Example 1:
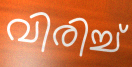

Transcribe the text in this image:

വിരിച്ച്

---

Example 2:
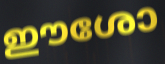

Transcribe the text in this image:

ഈശോ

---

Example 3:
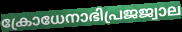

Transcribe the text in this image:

ക്രോധേനാഭിപ്രജജ്വാല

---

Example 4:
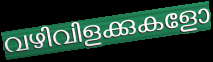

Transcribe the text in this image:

വഴിവിളക്കുകളോ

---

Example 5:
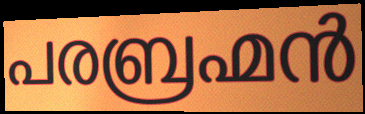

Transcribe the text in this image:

പരബ്രഹ്മൻ